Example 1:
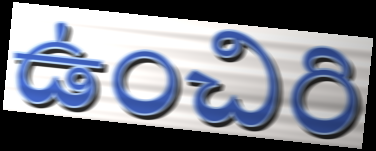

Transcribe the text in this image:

ఉంచిరి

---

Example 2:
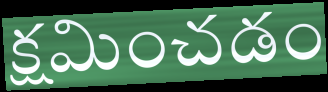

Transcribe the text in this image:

క్షమించడం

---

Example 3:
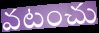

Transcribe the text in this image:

వటంచు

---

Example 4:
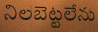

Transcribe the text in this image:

నిలబెట్టలేను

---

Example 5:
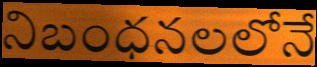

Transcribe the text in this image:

నిబంధనలలోనే